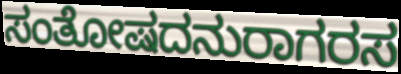
ಸಂತೋಷದನುರಾಗರಸ